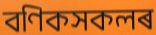
বণিকসকলৰ